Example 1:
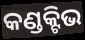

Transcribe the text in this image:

କଣ୍ଡକ୍ଟିଭ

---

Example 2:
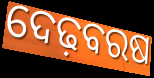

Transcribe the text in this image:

ଦେଢ଼ବରଷ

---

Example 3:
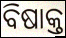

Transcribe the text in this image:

ବିଷାକ୍ତ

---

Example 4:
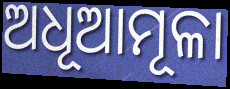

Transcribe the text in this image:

ଅଧୂଆମୂଳା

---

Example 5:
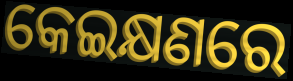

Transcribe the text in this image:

କେଇକ୍ଷଣରେ